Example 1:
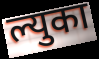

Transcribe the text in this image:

ल्युका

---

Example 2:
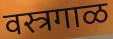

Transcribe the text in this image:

वस्त्रगाळ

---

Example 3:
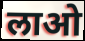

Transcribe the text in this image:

लाओ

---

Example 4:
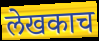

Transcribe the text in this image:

लेखकाच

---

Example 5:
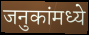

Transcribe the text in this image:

जनुकांमध्ये